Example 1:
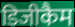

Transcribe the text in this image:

डिजीकैम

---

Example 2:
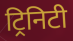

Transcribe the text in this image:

ट्रिनिटी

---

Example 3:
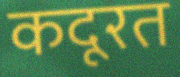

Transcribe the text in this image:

कदूरत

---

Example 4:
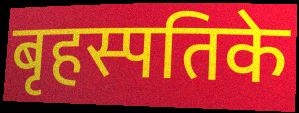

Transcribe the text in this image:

बृहस्पतिके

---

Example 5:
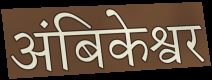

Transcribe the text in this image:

अंबिकेश्वर